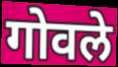
गोवले